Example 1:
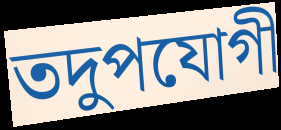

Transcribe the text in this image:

তদুপযোগী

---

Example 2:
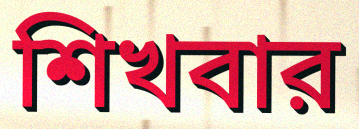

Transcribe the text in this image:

শিখবার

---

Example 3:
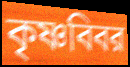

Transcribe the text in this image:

কৃষ্ণবিবর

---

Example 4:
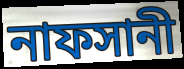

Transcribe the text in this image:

নাফসানী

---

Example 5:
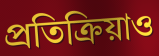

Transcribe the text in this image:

প্রতিক্রিয়াও